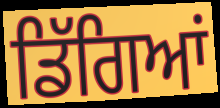
ਡਿੱਗਿਆਂ